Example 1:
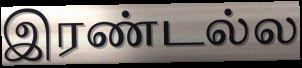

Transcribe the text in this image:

இரண்டல்ல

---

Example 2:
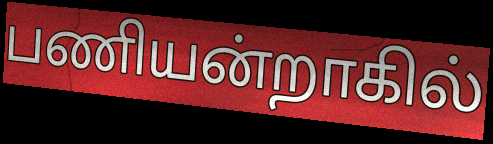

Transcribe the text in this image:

பணியன்றாகில்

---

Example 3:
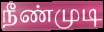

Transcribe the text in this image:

நீண்முடி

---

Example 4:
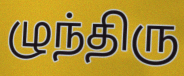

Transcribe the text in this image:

ழுந்திரு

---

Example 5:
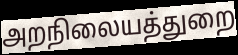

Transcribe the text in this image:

அறநிலையத்துறை